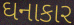
ઘનાકાર